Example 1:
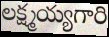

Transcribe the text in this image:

లక్ష్మయ్యగారి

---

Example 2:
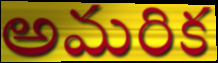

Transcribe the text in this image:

అమరిక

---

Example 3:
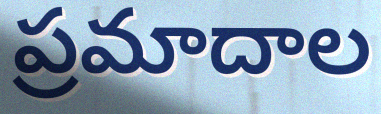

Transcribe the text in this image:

ప్రమాదాల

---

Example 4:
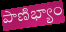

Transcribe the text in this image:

పాణిభ్యాం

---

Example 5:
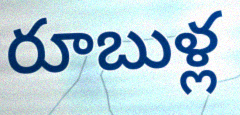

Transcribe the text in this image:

రూబుళ్ల